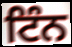
ਟਿੰਨ